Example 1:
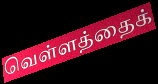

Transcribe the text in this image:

வெள்ளத்தைக்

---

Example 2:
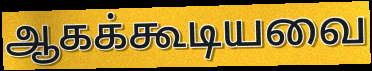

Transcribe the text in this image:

ஆகக்கூடியவை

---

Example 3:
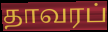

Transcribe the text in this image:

தாவரப்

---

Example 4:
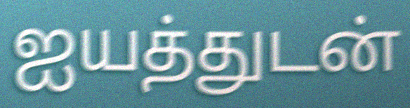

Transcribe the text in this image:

ஐயத்துடன்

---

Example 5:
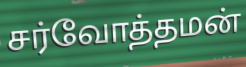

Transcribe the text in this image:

சர்வோத்தமன்